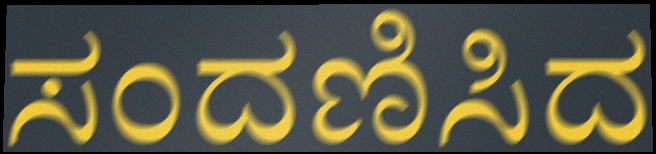
ಸಂದಣಿಸಿದ